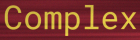
Complex